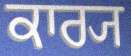
ਕਾਰ੍ਯ